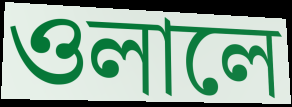
ওলালে